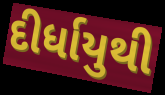
દીર્ધાયુથી